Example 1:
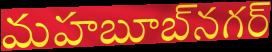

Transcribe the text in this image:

మహబూబ్‌నగర్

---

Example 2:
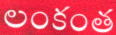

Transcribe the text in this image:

లంకంత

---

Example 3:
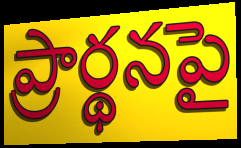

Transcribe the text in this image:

ప్రార్థనపై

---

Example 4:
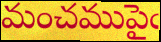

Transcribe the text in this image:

మంచముపైఁ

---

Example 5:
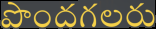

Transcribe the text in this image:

పొందగలరు